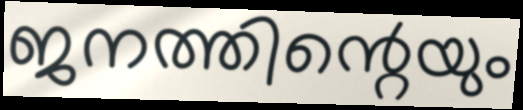
ജനത്തിന്റെയും